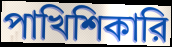
পাখিশিকারি